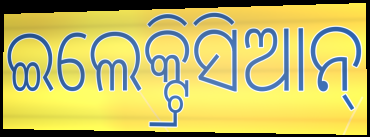
ଇଲେକ୍ଟ୍ରିସିଆନ୍